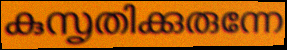
കുസൃതിക്കുരുന്നേ